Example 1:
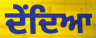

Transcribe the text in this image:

ਦੇਂਦਿਆ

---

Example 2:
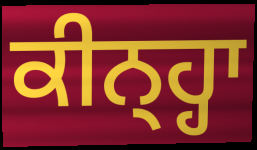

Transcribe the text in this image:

ਕੀਨ੍ਹ੍ਹਾ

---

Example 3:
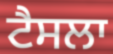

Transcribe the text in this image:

ਟੈਸਲਾ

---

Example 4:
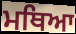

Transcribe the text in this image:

ਮਥਿਆ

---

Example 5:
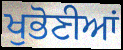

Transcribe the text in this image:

ਖੁਭੋਣੀਆਂ